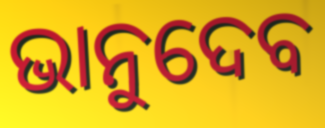
ଭାନୁଦେବ